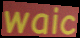
waic